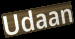
Udaan